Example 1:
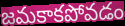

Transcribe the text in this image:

జమకాకపోవడం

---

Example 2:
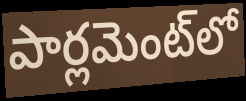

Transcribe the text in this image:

పార్లమెంట్‌లో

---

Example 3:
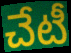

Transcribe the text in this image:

చేటీ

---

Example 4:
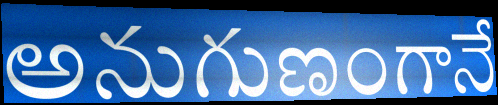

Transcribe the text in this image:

అనుగుణంగానే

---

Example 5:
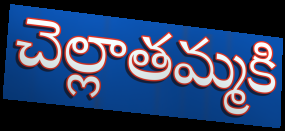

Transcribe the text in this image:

చెల్లాతమ్మకి